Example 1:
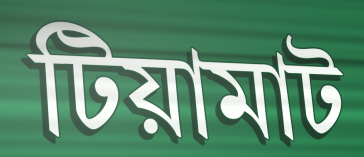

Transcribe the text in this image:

টিয়ামাট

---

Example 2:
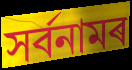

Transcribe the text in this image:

সৰ্বনামৰ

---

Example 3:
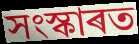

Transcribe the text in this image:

সংস্কাৰত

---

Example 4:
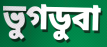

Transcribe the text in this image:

ভুগডুবা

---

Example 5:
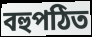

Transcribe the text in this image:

বহুপঠিত